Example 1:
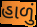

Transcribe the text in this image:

હાળું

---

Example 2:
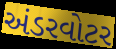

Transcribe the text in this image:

અંડરવોટર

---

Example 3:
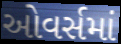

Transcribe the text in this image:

ઓવર્સમાં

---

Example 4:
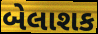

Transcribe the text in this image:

બેલાશક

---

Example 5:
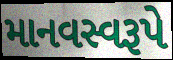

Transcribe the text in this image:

માનવસ્વરૂપે